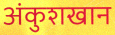
अंकुशखान